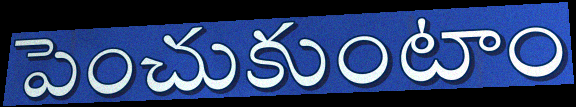
పెంచుకుంటాం